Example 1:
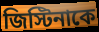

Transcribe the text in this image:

জিস্টিনাকে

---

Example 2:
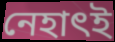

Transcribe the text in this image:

নেহাৎই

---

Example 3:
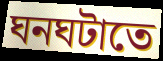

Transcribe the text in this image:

ঘনঘটাতে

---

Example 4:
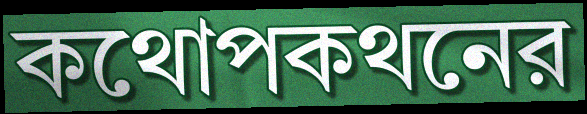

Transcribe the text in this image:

কথোপকথনের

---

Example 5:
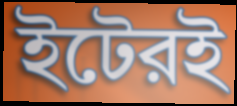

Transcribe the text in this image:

ইটেরই